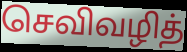
செவிவழித்